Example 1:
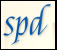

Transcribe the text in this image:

spd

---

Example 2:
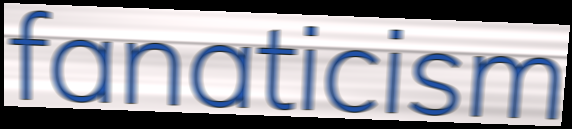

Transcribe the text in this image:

fanaticism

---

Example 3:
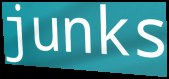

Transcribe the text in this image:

junks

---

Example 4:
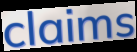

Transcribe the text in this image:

claims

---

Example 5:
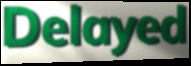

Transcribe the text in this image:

Delayed